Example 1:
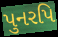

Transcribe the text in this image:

પુનરપિ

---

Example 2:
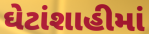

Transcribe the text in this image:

ઘેટાંશાહીમાં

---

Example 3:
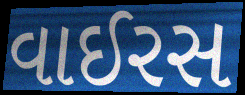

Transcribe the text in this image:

વાઈરસ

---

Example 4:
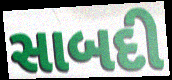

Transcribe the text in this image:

સાબદી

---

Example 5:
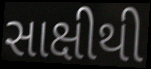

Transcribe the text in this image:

સાક્ષીથી